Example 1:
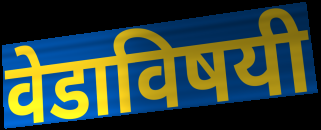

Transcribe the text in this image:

वेडाविषयी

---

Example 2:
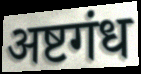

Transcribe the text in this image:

अष्टगंध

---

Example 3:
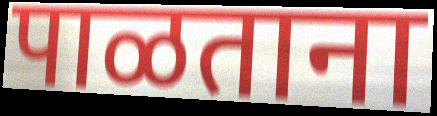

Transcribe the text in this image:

पाळताना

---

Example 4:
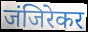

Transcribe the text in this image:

जंजिरेकर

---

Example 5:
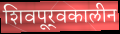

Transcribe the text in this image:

शिवपूर्वकालीन